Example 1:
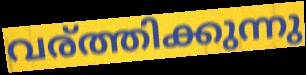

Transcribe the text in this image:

വര്ത്തിക്കുന്നു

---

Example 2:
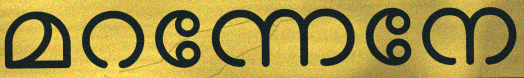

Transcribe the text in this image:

മറന്നേനേ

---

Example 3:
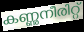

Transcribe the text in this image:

കണ്ണുനീരിറ്റ്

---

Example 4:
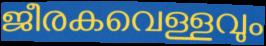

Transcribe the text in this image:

ജീരകവെള്ളവും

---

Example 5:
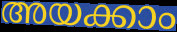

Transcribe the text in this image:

അയക്കാം